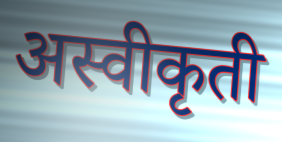
अस्वीकृती